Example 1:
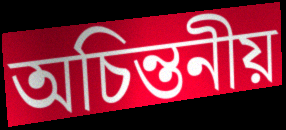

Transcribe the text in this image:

অচিন্তনীয়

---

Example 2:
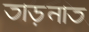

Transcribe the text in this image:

তাড়নাত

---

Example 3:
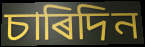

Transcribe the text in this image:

চাৰিদিন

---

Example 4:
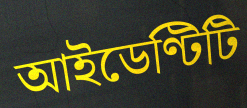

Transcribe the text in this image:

আইডেণ্টিটি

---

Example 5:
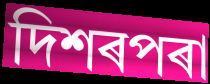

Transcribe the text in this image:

দিশৰপৰা